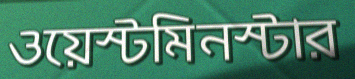
ওয়েস্টমিনস্টার